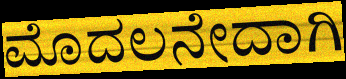
ಮೊದಲನೇದಾಗಿ